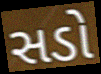
સડો